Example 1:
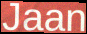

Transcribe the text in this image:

Jaan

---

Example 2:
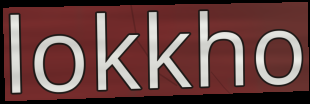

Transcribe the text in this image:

lokkho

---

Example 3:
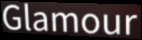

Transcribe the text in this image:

Glamour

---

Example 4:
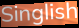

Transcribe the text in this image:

Singlish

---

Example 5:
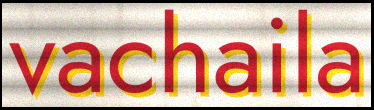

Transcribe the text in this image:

vachaila